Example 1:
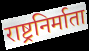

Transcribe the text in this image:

राष्ट्रनिर्माता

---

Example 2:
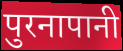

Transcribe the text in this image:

पुरनापानी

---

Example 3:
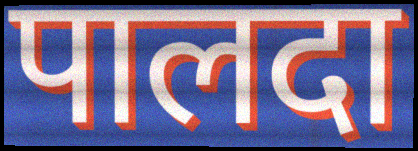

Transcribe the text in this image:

पालदा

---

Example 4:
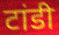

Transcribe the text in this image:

टांडी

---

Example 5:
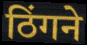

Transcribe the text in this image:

ठिंगने